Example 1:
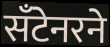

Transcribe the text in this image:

सँटेनरने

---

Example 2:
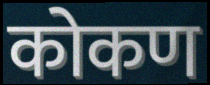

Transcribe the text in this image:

कोकण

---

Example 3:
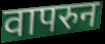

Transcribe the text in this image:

वापरुन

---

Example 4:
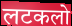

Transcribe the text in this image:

लटकलो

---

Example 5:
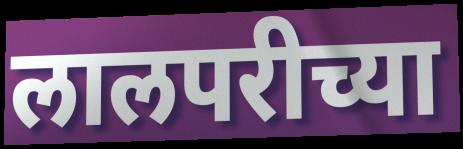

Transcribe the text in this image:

लालपरीच्या